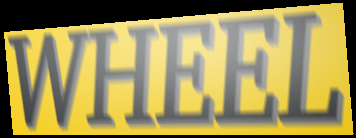
WHEEL